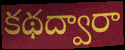
కథద్వారా